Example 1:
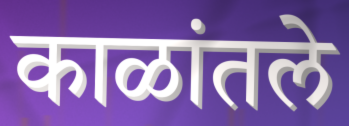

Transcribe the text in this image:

काळांतले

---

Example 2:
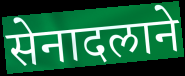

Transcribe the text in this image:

सेनादलाने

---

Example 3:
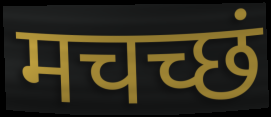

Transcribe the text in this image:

मचच्छं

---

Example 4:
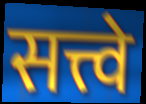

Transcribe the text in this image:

सत्त्वे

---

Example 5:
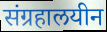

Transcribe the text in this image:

संग्रहालयीन